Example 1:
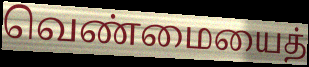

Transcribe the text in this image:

வெண்மையைத்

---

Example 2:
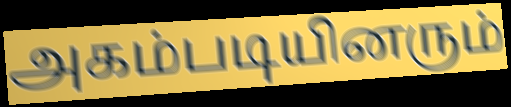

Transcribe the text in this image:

அகம்படியினரும்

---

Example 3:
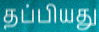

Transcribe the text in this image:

தப்பியது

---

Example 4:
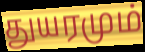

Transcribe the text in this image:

துயரமும்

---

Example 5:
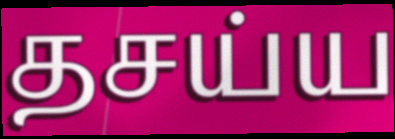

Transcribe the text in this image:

தசய்ய